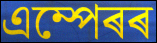
এম্পেৰৰ